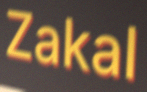
Zakal